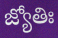
జ్యోతిః